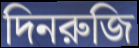
দিনরুজি